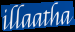
illaatha